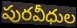
పురవీధుల